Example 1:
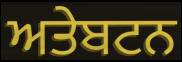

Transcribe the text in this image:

ਅਤੇਬਟਨ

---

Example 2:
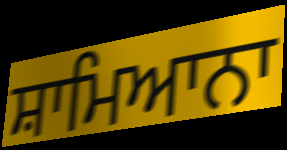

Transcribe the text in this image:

ਸ਼ਾਮਿਆਨਾ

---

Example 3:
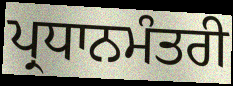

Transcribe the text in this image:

ਪ੍ਰਧਾਨਮੰਤਰੀ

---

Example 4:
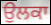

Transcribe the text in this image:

ਉਲਕਾ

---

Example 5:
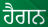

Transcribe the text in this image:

ਹੈਗਨ